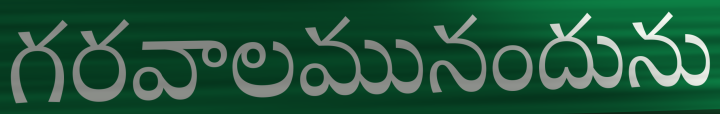
గరవాలమునందును